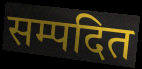
सम्पदित